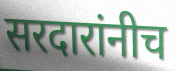
सरदारांनीच